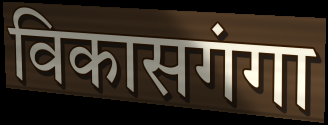
विकासगंगा